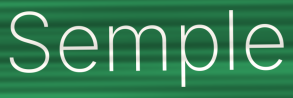
Semple